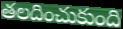
తలదించుకుంది